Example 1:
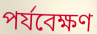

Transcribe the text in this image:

পর্যবেক্ষণ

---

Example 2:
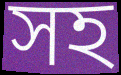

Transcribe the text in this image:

সহ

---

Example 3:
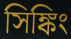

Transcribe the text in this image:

সিঙ্কিং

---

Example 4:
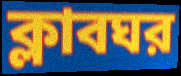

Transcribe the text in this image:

ক্লাবঘর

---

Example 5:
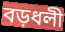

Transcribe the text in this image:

বড়ধলী